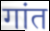
गांत